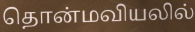
தொன்மவியலில்